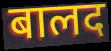
बालद